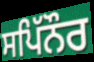
ਸਪਿੱਨੌਰ